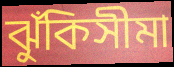
ঝুঁকিসীমা